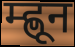
म्ह्णून